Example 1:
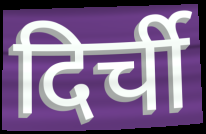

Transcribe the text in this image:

दिर्ची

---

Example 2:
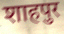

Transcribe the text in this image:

शाहपुर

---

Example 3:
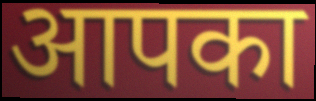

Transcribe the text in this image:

आपका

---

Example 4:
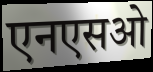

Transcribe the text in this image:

एनएसओ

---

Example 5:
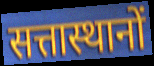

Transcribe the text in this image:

सत्तास्थानों